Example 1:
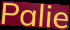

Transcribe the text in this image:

Palie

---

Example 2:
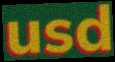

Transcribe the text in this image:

usd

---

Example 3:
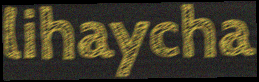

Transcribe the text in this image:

lihaycha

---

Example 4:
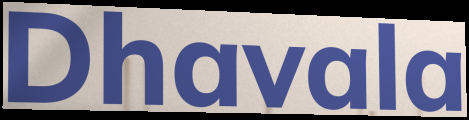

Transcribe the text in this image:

Dhavala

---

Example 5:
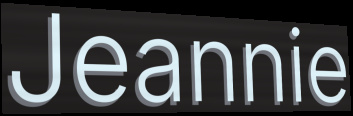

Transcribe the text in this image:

Jeannie